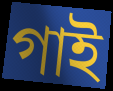
গাই